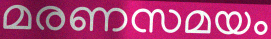
മരണസമയം